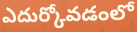
ఎదుర్కోవడంలో